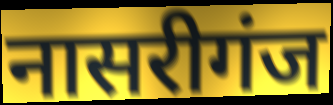
नासरीगंज